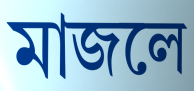
মাজলে